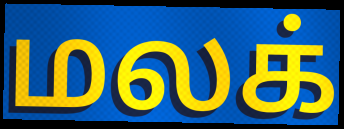
மலக்